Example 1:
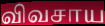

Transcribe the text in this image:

விவசாய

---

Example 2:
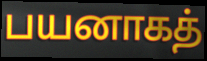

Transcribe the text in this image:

பயனாகத்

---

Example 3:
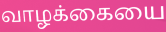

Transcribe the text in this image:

வாழக்கையை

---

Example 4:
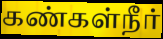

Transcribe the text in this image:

கண்கள்நீர்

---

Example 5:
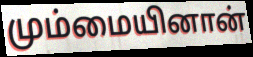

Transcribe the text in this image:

மும்மையினான்